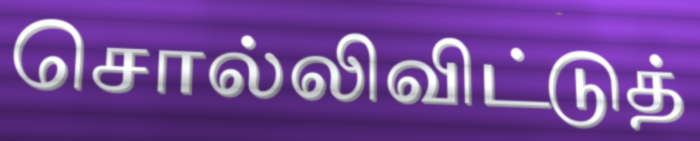
சொல்லிவிட்டுத்